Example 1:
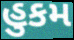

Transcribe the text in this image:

હુકમ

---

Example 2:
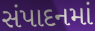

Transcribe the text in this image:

સંપાદનમાં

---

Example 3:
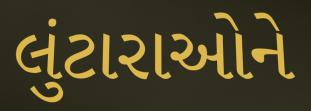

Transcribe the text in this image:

લુંટારાઓને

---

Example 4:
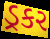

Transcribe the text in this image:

ડ્રકર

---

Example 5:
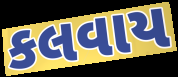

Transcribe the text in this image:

કલવાય